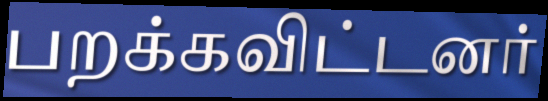
பறக்கவிட்டனர்